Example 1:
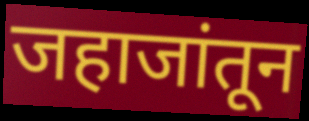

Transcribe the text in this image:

जहाजांतून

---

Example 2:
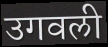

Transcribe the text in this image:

उगवली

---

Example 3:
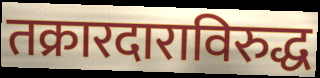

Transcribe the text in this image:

तक्रारदाराविरुद्ध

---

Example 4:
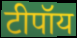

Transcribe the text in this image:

टीपॉय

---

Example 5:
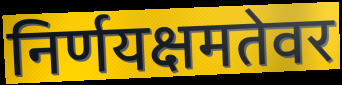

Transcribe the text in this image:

निर्णयक्षमतेवर